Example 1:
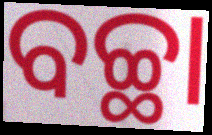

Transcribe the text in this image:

ବଚ୍ଛା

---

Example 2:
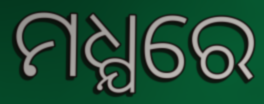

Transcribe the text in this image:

ମଧ୍ଯରେ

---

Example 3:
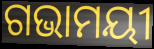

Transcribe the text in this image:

ଗଭାମୟୀ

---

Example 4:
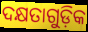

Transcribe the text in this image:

ଦକ୍ଷତାଗୁଡ଼ିକ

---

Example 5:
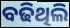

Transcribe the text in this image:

ବଢିଥିଲି